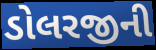
ડોલરજીની